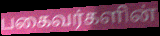
பகைவர்களின்